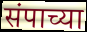
संपाच्या